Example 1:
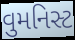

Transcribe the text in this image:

વુમનિસ્ટ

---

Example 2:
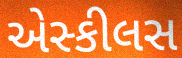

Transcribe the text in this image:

એસ્કીલસ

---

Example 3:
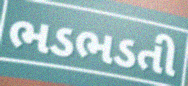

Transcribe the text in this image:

ભડભડતી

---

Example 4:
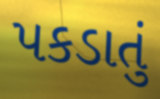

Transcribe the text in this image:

પકડાતું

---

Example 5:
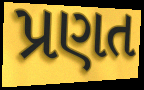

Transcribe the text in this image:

પ્રણત